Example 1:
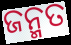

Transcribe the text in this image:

ଜନ୍ମତ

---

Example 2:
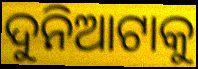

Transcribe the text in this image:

ଦୁନିଆଟାକୁ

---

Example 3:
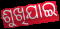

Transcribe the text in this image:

ଶୁଖିଯାଇ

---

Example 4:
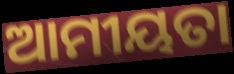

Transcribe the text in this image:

ଆମୀୟତା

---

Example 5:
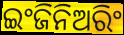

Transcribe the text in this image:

ଇଂଜିନିଅରିଂ